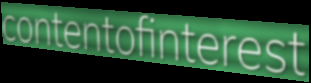
contentofinterest